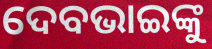
ଦେବଭାଇଙ୍କୁ